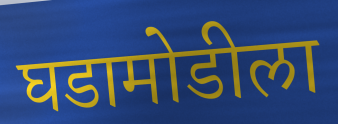
घडामोडीला